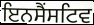
ਇਨਸੈਂਸਟਿਵ